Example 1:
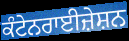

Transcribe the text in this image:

ਕੰਟੇਨਰਾਈਜ਼ੇਸ਼ਨ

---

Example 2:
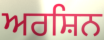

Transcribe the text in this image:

ਅਰਸ਼ਿਨ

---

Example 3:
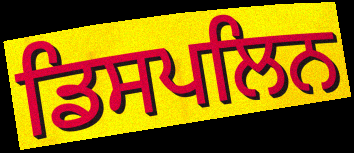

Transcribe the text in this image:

ਡਿਸਪਲਿਨ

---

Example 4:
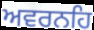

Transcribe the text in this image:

ਅਵਰਨਹਿ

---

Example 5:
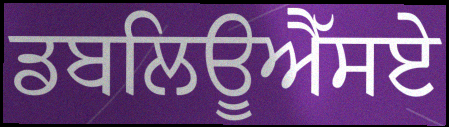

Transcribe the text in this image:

ਡਬਲਿਊਐੱਸਏ